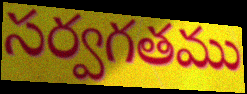
సర్వగతము